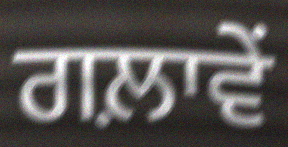
ਗਲ਼ਾਵੇਂ